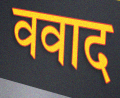
ववाद